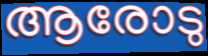
ആരോടു